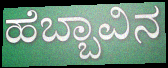
ಹೆಬ್ಬಾವಿನ